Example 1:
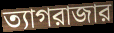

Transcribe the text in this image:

ত্যাগরাজার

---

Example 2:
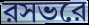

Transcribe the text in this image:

রসভরে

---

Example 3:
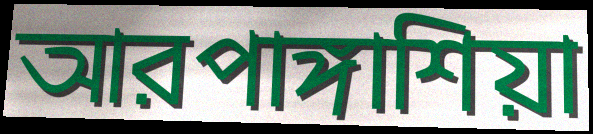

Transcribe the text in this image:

আরপাঙ্গাশিয়া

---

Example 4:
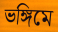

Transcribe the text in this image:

ভঙ্গিমে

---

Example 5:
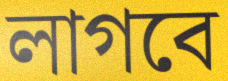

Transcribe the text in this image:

লাগবে